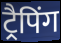
ट्रैपिंग